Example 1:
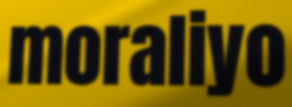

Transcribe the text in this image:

moraliyo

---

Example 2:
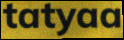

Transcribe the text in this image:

tatyaa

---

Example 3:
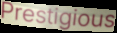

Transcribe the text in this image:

Prestigious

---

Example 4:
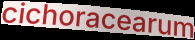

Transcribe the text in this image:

cichoracearum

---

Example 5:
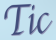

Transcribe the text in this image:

Tic